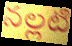
నల్లటి